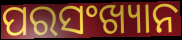
ପରସଂଖ୍ୟାନ